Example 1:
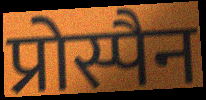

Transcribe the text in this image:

प्रोस्पैन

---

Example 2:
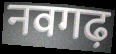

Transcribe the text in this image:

नवगढ़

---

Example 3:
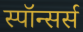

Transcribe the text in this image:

स्पॉन्सर्स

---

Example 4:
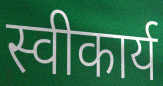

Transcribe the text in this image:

स्वीकार्य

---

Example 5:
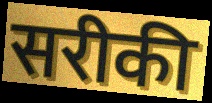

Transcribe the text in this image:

सरीकी